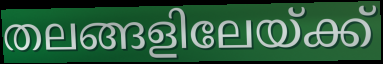
തലങ്ങളിലേയ്ക്ക്